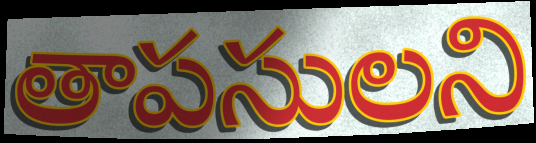
తాపసులని